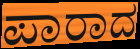
ಪಾರಾದ